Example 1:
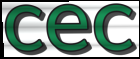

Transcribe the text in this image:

cec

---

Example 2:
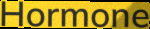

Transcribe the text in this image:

Hormone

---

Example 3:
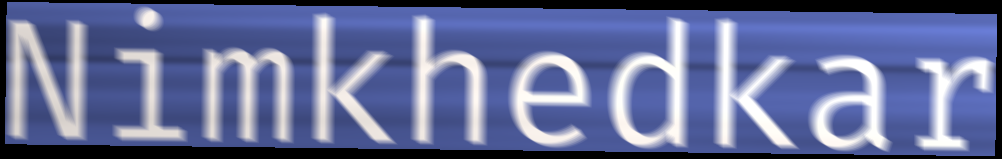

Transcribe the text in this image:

Nimkhedkar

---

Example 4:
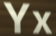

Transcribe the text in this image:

Yx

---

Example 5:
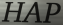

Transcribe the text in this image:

HAP